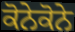
ਕੋਨੇਕੋਨੇ